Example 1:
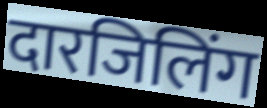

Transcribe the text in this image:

दारजिलिंग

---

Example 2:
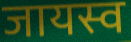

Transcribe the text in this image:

जायस्व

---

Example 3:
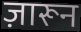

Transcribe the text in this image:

ज़ारून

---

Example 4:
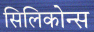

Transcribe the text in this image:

सिलिकोन्स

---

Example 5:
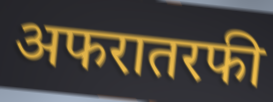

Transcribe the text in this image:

अफरातरफी